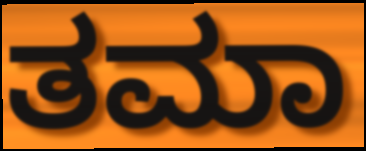
ತಮಾ